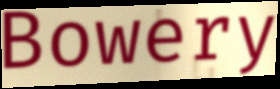
Bowery